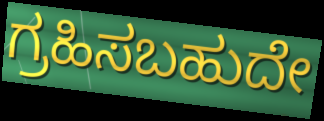
ಗ್ರಹಿಸಬಹುದೇ